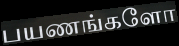
பயணங்களோ